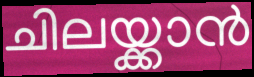
ചിലയ്ക്കാൻ